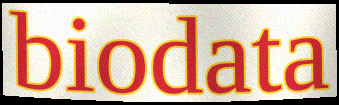
biodata